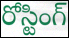
రోస్టింగ్